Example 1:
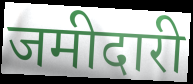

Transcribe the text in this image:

जमीदारी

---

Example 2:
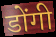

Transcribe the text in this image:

डोंगी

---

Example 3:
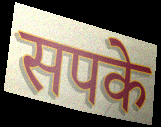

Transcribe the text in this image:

सपके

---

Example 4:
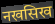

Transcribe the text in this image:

नखसिख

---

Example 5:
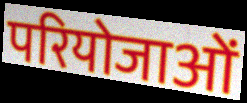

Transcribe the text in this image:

परियोजाओं